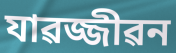
যাৱজ্জীৱন